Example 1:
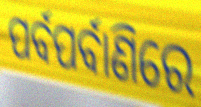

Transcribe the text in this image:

ପର୍ବପର୍ବାଣିରେ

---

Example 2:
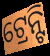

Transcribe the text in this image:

ଟ୍ରେନ୍ଟି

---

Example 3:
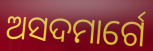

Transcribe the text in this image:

ଅସଦମାର୍ଗେ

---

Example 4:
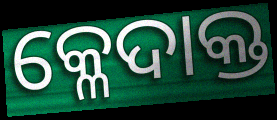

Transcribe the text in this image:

କ୍ଳେଦାକ୍ତ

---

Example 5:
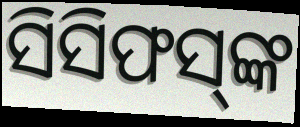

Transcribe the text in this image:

ସିସିଫସ୍‌ଙ୍କ